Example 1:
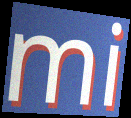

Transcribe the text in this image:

mi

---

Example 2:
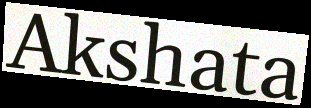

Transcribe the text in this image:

Akshata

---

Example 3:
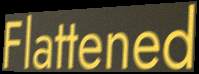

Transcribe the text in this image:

Flattened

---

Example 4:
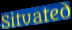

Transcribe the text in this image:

Situated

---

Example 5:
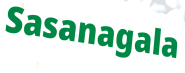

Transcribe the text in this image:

Sasanagala